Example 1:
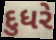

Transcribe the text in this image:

દુધરે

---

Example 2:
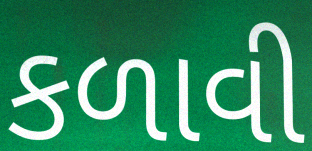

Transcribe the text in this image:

કળાવી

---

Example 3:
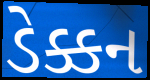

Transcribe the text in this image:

ડેક્કન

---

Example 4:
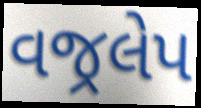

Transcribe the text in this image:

વજ્રલેપ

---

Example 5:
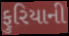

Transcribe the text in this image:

ફુરિયાની